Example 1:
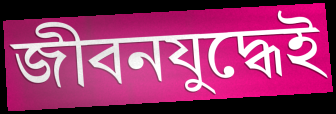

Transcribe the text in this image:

জীবনযুদ্ধেই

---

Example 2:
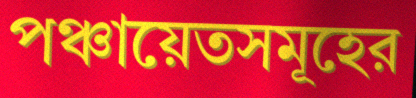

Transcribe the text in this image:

পঞ্চায়েতসমূহের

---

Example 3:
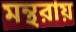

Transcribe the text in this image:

মন্থরায়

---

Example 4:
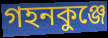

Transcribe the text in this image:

গহনকুঞ্জে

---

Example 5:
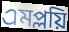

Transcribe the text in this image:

এমপ্লয়ি